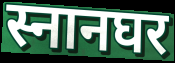
स्नानघर